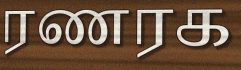
ரணரக